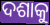
ଦଶାକୁ